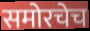
समोरचेच